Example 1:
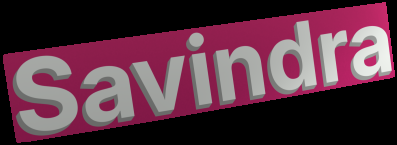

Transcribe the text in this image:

Savindra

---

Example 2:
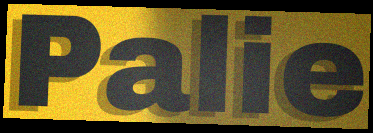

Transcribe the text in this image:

Palie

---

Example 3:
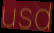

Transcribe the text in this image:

usd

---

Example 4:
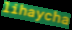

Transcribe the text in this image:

lihaycha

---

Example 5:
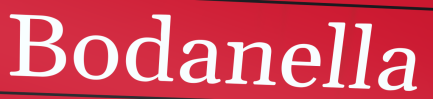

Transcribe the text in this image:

Bodanella